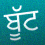
ਬੂੱਟ